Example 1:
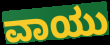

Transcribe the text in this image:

ವಾಯು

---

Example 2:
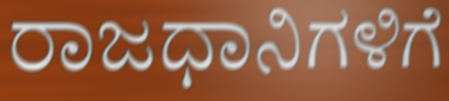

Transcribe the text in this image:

ರಾಜಧಾನಿಗಳಿಗೆ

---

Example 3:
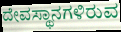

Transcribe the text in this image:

ದೇವಸ್ಥಾನಗಳಿರುವ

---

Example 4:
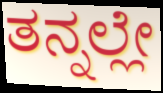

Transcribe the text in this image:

ತನ್ನಲ್ಲೇ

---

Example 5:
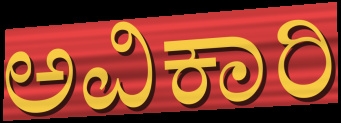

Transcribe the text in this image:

ಅವಿಕಾರಿ